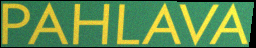
PAHLAVA